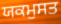
ਯਕਮੁਸਤ